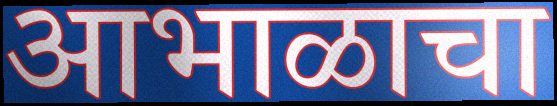
आभाळाचा